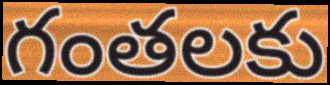
గంతలకు